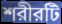
শরীরটি